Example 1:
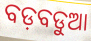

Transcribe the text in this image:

ବଡ଼ବଡୁଆ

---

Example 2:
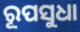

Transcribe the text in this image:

ରୂପସୁଧା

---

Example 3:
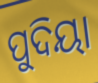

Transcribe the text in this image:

ପୁଦିୟା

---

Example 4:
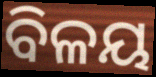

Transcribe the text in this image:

ବିଳୟ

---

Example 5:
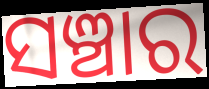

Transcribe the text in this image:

ସଞ୍ଚାର